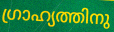
ഗ്രാഹ്യത്തിനു